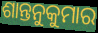
ଶାନ୍ତନୁକୁମାର